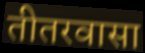
तीतरवासा